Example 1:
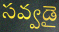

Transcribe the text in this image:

సవ్వడై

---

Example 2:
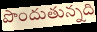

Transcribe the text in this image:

పొందుతున్నది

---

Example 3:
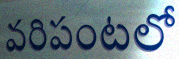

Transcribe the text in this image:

వరిపంటలో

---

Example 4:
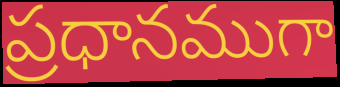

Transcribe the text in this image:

ప్రధానముగా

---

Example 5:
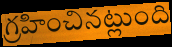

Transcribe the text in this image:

గ్రహించినట్లుంది